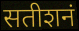
सतीशनं